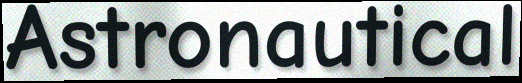
Astronautical